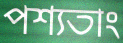
পশ্যতাং